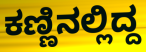
ಕಣ್ಣಿನಲ್ಲಿದ್ದ